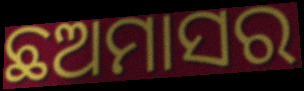
ଛଅମାସର